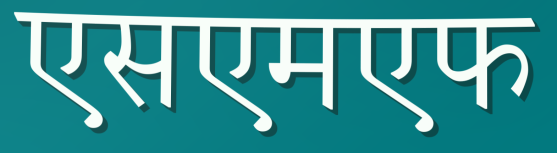
एसएमएफ